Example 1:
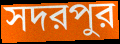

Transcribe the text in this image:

সদরপুর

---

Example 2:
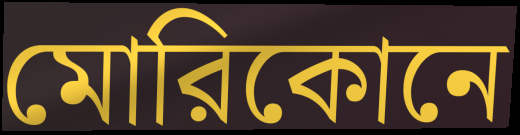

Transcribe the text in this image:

মোরিকোনে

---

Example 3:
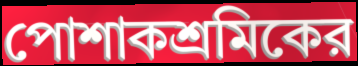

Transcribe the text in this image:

পোশাকশ্রমিকের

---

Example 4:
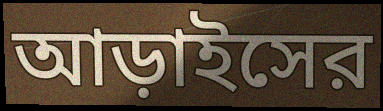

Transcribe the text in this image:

আড়াইসের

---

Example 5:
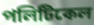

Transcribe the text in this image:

পলিটিকেল